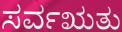
ಸರ್ವಋತು